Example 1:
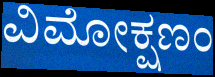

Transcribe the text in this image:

ವಿಮೋಕ್ಷಣಂ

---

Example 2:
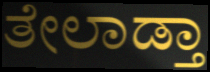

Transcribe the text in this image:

ತೇಲಾಡ್ತಾ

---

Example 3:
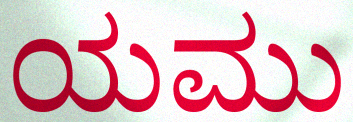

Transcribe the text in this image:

ಯಮು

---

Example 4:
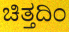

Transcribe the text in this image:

ಚಿತ್ತದಿಂ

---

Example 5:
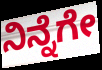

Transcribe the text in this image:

ನಿನ್ನೆಗೇ